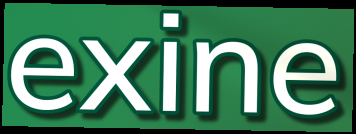
exine